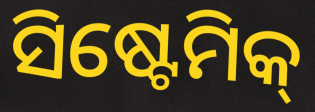
ସିଷ୍ଟେମିକ୍